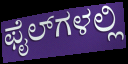
ಫೈಲ್‌ಗಳಲ್ಲಿ